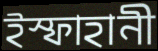
ইস্ফাহানী